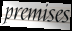
premises